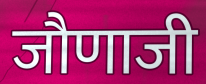
जौणाजी